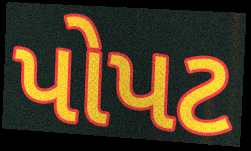
પોપટ